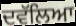
ਦਵੱਲਿਆ